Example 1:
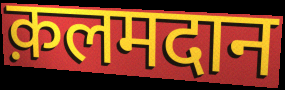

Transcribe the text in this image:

क़लमदान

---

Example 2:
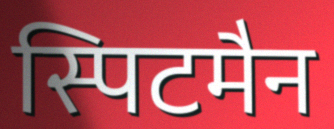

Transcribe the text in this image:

स्पिटमैन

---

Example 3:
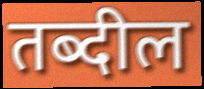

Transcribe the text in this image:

तब्दील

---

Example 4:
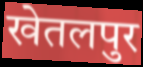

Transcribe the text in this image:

खेतलपुर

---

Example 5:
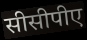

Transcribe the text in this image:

सीसीपीए